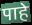
पाहे